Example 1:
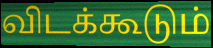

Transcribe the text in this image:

விடக்கூடும்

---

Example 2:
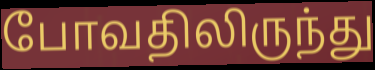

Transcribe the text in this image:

போவதிலிருந்து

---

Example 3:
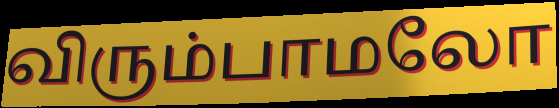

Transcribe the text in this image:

விரும்பாமலோ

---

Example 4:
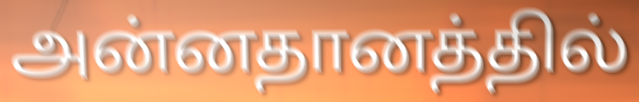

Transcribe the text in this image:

அன்னதானத்தில்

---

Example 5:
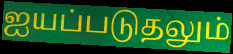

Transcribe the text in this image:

ஐயப்படுதலும்